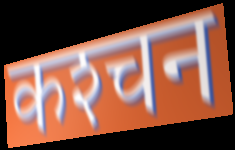
कश्चन